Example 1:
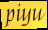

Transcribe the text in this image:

piyu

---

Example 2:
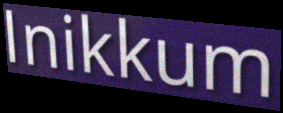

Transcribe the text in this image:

Inikkum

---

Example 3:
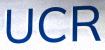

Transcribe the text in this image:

UCR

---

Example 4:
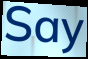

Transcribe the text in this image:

Say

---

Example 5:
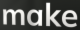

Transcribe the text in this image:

make